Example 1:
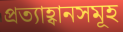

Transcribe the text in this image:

প্ৰত্যাহ্বানসমূহ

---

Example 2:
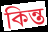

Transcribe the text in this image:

কিন্ত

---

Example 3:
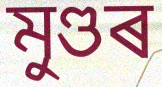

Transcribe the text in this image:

মুণ্ডৰ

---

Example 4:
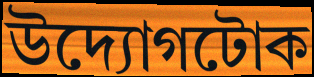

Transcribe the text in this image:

উদ্যোগটোক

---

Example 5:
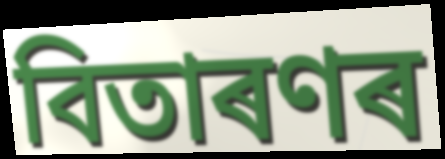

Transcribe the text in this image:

বিতাৰণৰ